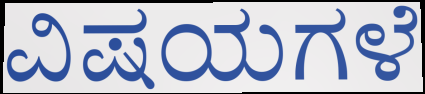
ವಿಷಯಗಳೆ